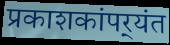
प्रकाशकांपर्यंत